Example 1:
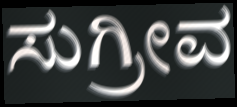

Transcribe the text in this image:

ಸುಗ್ರೀವ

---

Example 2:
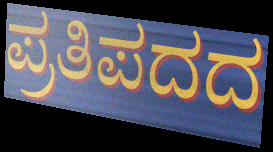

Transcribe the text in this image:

ಪ್ರತಿಪದದ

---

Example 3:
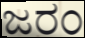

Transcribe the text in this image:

ಜರಂ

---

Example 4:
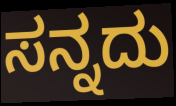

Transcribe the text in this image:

ಸನ್ನದು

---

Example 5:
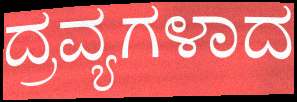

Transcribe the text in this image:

ದ್ರವ್ಯಗಳಾದ